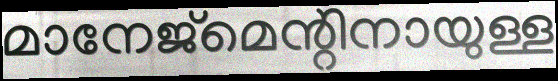
മാനേജ്മെന്റിനായുള്ള